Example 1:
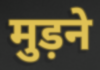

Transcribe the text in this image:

मुड़ने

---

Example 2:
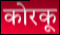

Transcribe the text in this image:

कोरकू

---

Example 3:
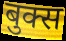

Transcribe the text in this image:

बुक्स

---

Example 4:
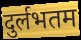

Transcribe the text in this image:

दुर्लभतम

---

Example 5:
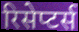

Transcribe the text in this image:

रिसेप्टर्स